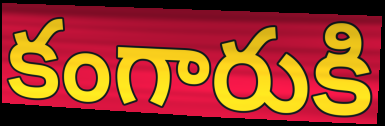
కంగారుకి